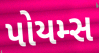
પોયમ્સ